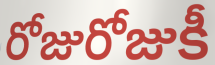
రోజురోజుకీ